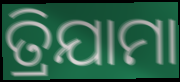
ତ୍ରିଯାମା